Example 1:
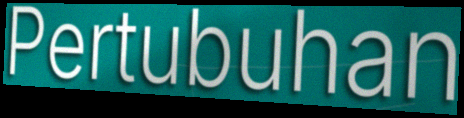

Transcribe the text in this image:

Pertubuhan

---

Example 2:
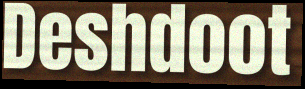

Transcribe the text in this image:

Deshdoot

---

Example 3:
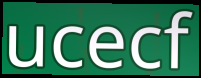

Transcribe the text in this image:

ucecf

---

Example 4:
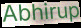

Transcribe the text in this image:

Abhirup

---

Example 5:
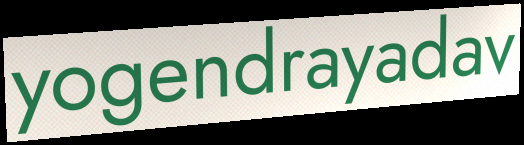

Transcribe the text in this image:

yogendrayadav